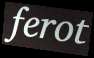
ferot